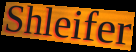
Shleifer